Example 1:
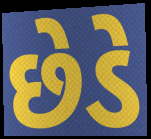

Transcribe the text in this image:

છેડે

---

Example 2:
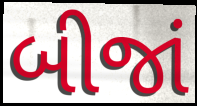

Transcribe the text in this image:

બીજાં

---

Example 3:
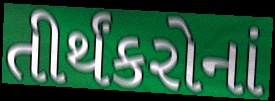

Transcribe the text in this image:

તીર્થંકરોનાં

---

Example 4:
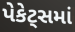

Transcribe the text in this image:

પેકેટ્સમાં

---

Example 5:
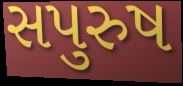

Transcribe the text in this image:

સપુરુષ